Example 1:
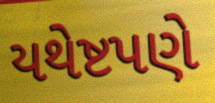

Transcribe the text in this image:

યથેષ્ટપણે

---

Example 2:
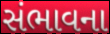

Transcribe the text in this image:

સંભાવના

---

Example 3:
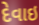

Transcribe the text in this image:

દેવાઇ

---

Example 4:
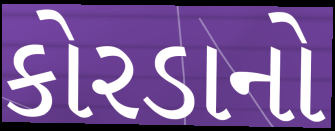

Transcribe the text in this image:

કોરડાનો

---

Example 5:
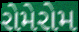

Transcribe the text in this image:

રોમેરોમ